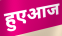
हुएआज